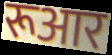
रूआर